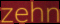
zehn